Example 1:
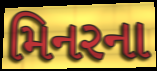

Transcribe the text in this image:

મિનરના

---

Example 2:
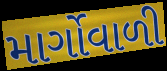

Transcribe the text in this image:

માર્ગોવાળી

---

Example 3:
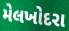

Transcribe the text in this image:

મેલખોદરા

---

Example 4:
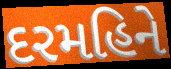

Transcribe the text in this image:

દરમહિને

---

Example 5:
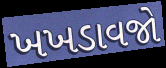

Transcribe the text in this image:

ખખડાવજો